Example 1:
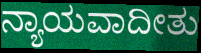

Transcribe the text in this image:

ನ್ಯಾಯವಾದೀತು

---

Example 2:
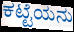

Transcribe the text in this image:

ಕಟ್ಟೆಯನು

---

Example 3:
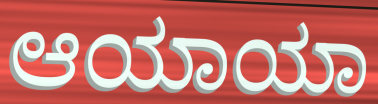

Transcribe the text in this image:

ಆಯಾಯಾ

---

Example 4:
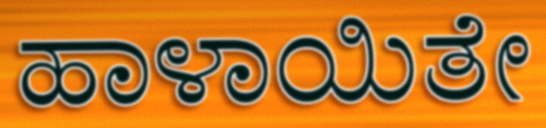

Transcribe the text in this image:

ಹಾಳಾಯಿತೇ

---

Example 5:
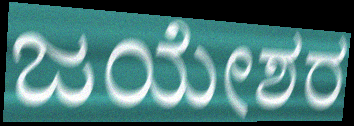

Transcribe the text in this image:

ಜಯೇಶರ